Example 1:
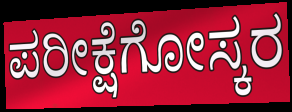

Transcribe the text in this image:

ಪರೀಕ್ಷೆಗೋಸ್ಕರ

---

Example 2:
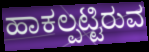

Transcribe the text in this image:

ಹಾಕಲ್ಪಟ್ಟಿರುವ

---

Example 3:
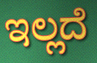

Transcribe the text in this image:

ಇಲ್ಲದೆ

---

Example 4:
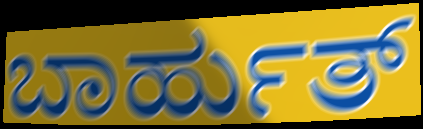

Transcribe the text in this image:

ಬಾರ್ಹುತ್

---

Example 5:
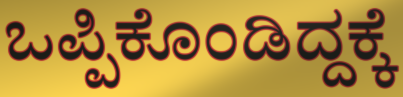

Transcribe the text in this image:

ಒಪ್ಪಿಕೊಂಡಿದ್ದಕ್ಕೆ